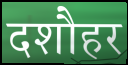
दशौहर